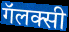
गॅलक्सी